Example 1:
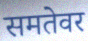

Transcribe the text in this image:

समतेवर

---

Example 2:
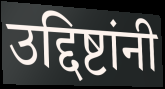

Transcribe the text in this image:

उद्दिष्टांनी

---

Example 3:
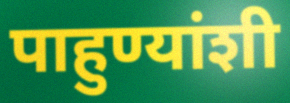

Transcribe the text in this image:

पाहुण्यांशी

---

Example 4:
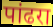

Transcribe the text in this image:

पांढरा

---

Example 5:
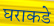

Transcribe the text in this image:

घराकडे